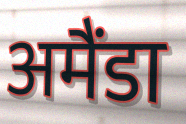
अमैंडा